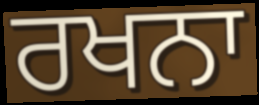
ਰਖਨਾ